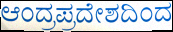
ಆಂದ್ರಪ್ರದೇಶದಿಂದ